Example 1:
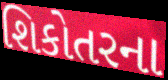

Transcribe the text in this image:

શિકોતરના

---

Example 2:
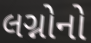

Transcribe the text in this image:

લગ્નોનો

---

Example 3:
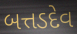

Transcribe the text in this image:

બત્તડદેવ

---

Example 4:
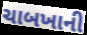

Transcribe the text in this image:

ચાબખાની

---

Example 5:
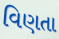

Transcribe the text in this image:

વિણતા